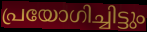
പ്രയോഗിച്ചിട്ടും